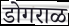
डोगराळ